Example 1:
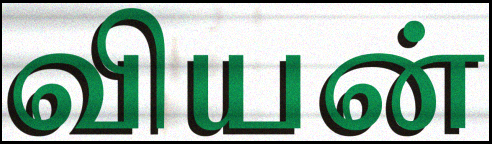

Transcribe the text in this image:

வியன்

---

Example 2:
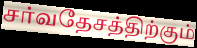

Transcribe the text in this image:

சர்வதேசத்திற்கும்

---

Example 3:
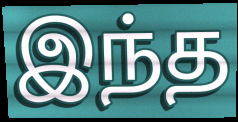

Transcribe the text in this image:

இந்த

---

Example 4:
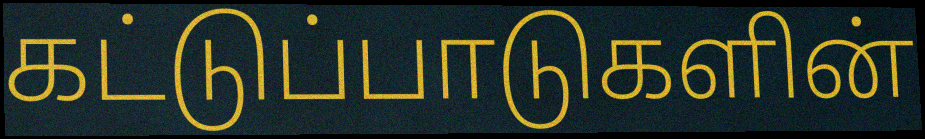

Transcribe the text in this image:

கட்டுப்பாடுகளின்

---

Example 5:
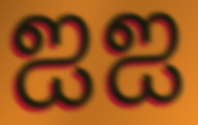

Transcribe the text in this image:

ஐஐ